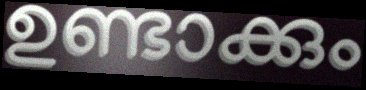
ഉണ്ടാക്കും